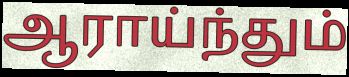
ஆராய்ந்தும்